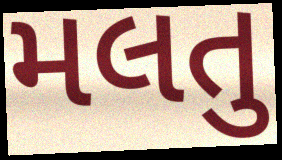
મલતુ